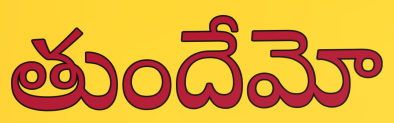
తుందేమో